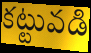
కట్టువడి